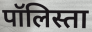
पॉलिस्ता